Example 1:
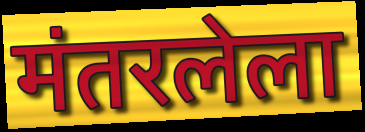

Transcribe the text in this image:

मंतरलेला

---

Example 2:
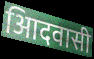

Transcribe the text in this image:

आिदवासी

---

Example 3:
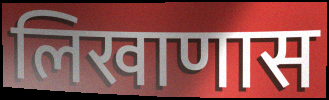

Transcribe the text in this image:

लिखाणास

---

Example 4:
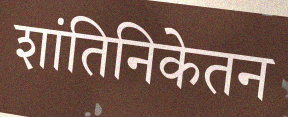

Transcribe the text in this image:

शांतिनिकेतन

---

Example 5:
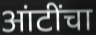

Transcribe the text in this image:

आंटींचा